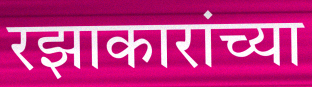
रझाकारांच्या